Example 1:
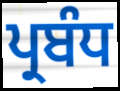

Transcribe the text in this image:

ਪ੍ਰਬੰਧ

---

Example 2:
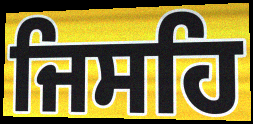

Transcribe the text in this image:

ਜਿਸਹਿ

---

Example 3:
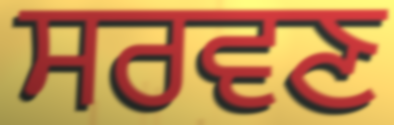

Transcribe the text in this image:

ਸਰਵਣ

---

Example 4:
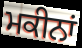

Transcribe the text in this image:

ਮਕੀਨਾਂ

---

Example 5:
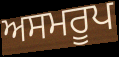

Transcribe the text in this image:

ਅਸਮਰੂਪ